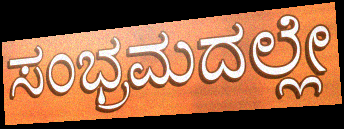
ಸಂಭ್ರಮದಲ್ಲೇ